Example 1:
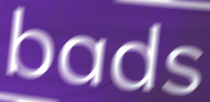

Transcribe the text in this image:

bads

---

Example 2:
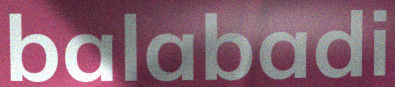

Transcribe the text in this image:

balabadi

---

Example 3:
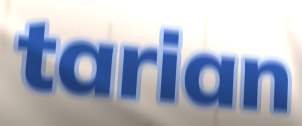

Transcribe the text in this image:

tarian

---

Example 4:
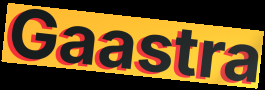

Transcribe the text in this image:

Gaastra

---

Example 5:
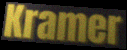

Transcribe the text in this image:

Kramer